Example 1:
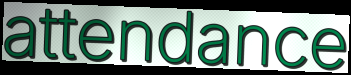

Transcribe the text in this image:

attendance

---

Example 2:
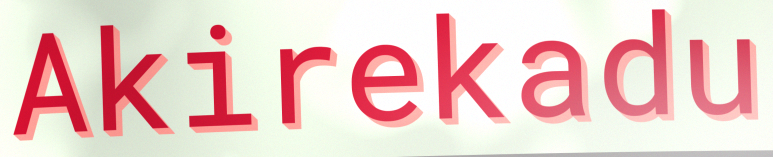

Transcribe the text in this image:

Akirekadu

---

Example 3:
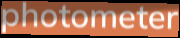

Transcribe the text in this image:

photometer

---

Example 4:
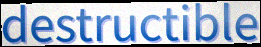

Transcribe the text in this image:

destructible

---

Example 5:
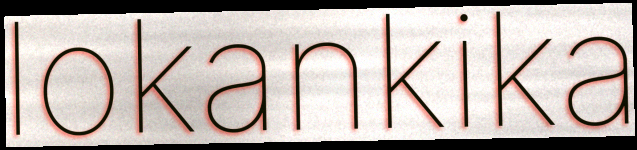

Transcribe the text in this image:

lokankika